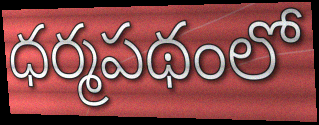
ధర్మపథంలో